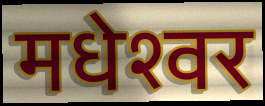
मधेश्वर